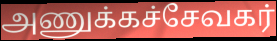
அணுக்கச்சேவகர்